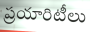
ప్రయారిటీలు